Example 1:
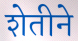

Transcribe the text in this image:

शेतीने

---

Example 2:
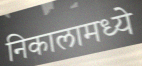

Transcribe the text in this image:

निकालामध्ये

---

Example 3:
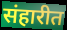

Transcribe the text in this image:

संहारीत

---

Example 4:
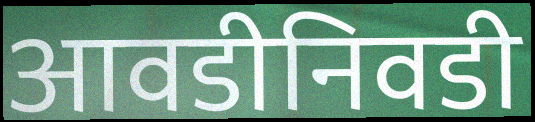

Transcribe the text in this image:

आवडीनिवडी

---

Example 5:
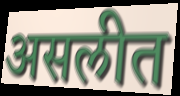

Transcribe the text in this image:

असलीत